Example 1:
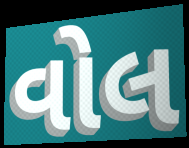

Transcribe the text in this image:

વોલ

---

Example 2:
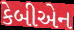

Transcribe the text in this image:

કેબીએન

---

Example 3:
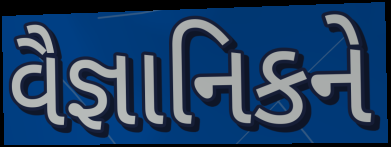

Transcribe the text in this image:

વૈજ્ઞાનિકને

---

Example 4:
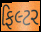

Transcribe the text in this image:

ફિલ્ટર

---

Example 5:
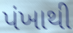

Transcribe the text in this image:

પંખાથી